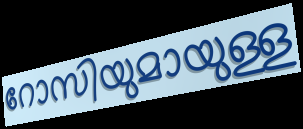
റോസിയുമായുള്ള